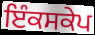
ਇੰਕਸਕੇਪ